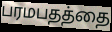
பரமபதத்தை